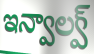
ఇన్వాల్వ్